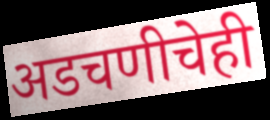
अडचणीचेही